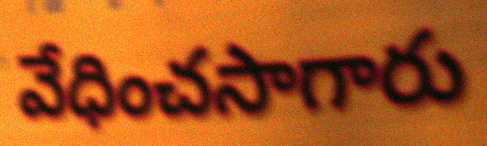
వేధించసాగారు